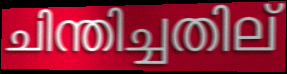
ചിന്തിച്ചതില്